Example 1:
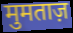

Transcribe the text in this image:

मुमताज़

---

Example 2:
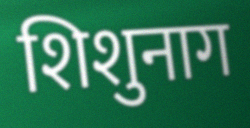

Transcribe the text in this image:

शिशुनाग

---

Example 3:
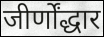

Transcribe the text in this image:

जीर्णोंद्धार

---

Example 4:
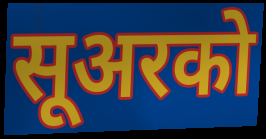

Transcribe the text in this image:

सूअरको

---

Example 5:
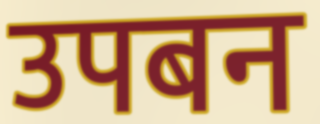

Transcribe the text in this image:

उपबन